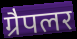
ग्रैपलर